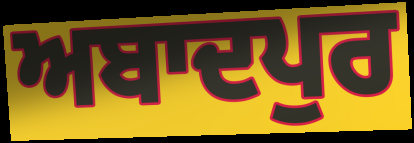
ਅਬਾਦਪੁਰ